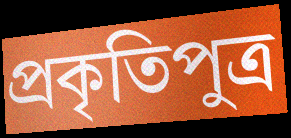
প্রকৃতিপুত্র